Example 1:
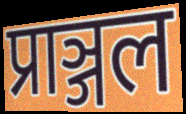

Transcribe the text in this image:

प्राञ्जल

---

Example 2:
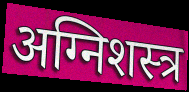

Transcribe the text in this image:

अग्निशस्त्र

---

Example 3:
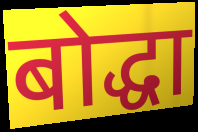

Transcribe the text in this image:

बोद्धा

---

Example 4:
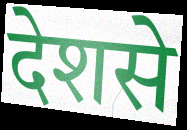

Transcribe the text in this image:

देशसे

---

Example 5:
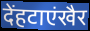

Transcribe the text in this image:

देंहटाएंखैर